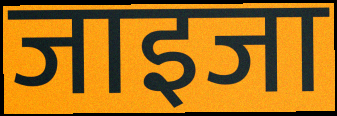
जाइजा